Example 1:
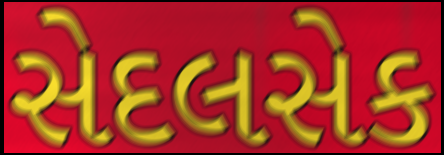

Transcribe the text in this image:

સેદલસેક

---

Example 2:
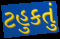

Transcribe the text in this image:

ટહુકતું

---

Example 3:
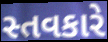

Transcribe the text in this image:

સ્તવકારે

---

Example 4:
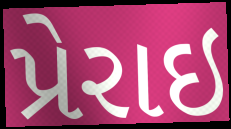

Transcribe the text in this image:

પ્રેરાઇ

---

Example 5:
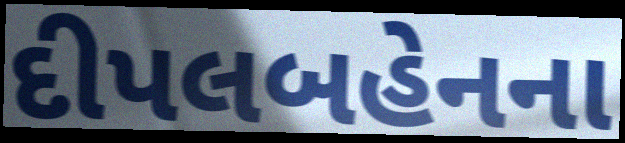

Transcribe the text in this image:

દીપલબહેનના